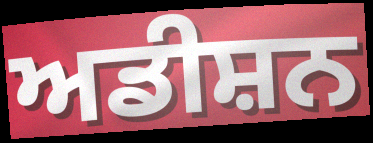
ਅਡੀਸ਼ਨ